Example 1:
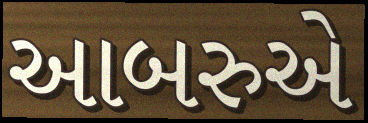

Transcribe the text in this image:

આબરુએ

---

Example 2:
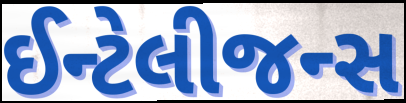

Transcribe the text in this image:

ઈન્ટેલીજન્સ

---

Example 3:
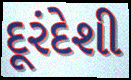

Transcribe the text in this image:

દૂરંદેશી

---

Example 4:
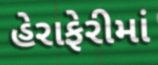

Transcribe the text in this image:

હેરાફેરીમાં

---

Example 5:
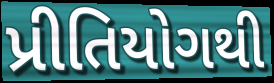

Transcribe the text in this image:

પ્રીતિયોગથી